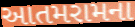
આતમરામના